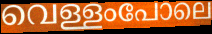
വെള്ളംപോലെ